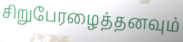
சிறுபேரழைத்தனவும்